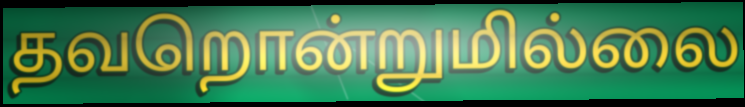
தவறொன்றுமில்லை